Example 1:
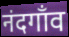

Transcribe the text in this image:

नंदगाँव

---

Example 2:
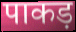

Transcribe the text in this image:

पाकड़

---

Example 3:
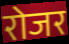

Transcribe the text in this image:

रोजर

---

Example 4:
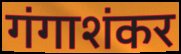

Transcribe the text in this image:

गंगाशंकर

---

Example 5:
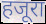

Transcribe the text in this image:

हजूरा